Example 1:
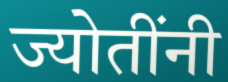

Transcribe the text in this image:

ज्योतींनी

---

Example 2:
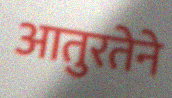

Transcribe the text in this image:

आतुरतेने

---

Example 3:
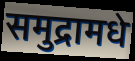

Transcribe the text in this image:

समुद्रामधे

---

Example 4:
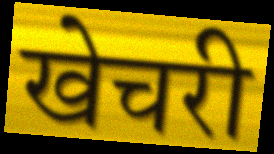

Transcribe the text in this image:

खेचरी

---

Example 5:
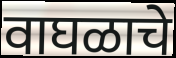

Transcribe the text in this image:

वाघळाचे